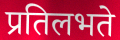
प्रतिलभते